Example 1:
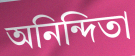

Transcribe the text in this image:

অনিন্দিতা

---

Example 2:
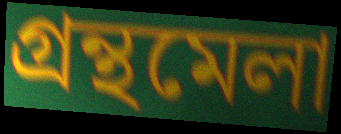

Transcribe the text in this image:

গ্ৰন্থমেলা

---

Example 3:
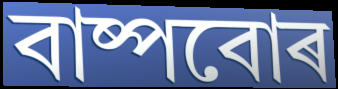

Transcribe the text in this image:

বাষ্পবোৰ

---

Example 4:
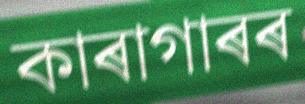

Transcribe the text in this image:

কাৰাগাৰৰ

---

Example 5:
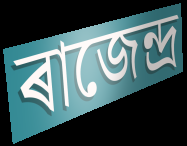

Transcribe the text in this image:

ৰাজেন্দ্ৰ